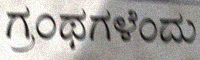
ಗ್ರಂಥಗಳೆಂದು